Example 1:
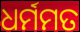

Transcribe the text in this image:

ଧର୍ମମତ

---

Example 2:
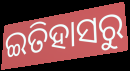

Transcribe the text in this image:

ଇତିହାସରୁ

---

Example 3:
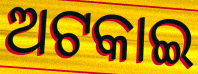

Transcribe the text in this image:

ଅଟକାଇ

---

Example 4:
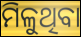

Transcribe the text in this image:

ମିଳୁଥିବା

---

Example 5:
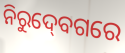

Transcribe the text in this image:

ନିରୁଦ୍‍ବେଗରେ